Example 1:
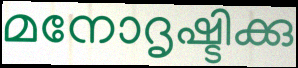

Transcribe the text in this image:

മനോദൃഷ്ടിക്കു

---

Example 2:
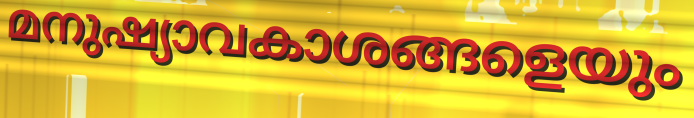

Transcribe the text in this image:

മനുഷ്യാവകാശങ്ങളെയും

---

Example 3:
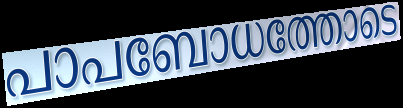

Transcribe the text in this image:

പാപബോധത്തോടെ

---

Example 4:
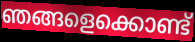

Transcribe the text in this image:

ഞങ്ങളെക്കൊണ്ട്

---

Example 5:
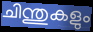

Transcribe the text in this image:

ചിന്തുകളും